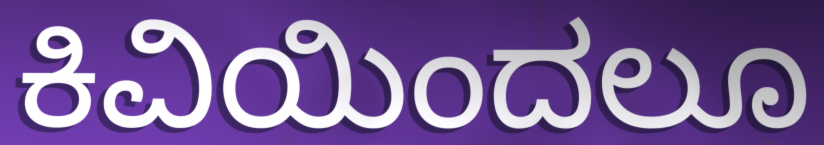
ಕಿವಿಯಿಂದಲೂ